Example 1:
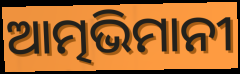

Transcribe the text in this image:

ଆତ୍ମଭିମାନୀ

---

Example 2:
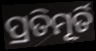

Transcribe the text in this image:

ପ୍ରତିମୂର୍ତି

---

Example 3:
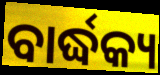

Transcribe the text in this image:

ବାର୍ଦ୍ଧକ୍ୟ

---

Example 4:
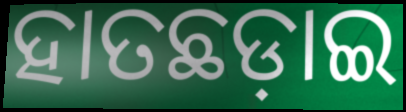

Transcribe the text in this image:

ହାତଛଡ଼ାଇ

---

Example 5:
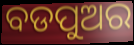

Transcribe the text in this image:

ବଡପୁଅର